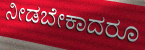
ನೀಡಬೇಕಾದರೂ